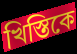
খিস্তিকে